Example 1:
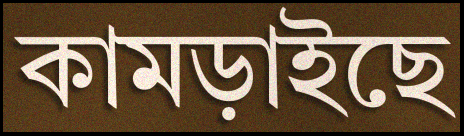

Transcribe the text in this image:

কামড়াইছে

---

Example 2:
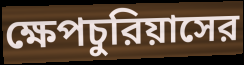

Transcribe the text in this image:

ক্ষেপচুরিয়াসের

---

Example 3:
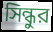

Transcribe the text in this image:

সিন্ধুর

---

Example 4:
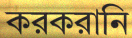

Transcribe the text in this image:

করকরানি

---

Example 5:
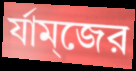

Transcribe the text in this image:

র্যাম্জের